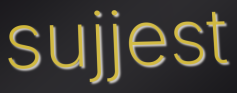
sujjest